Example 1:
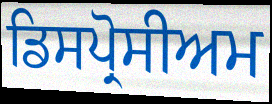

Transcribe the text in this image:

ਡਿਸਪ੍ਰੋਸੀਅਮ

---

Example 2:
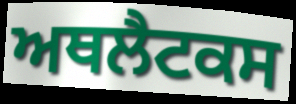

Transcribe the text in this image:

ਅਥਲੈਟਕਸ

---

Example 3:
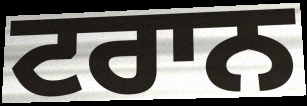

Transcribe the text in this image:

ਟਰਾਨ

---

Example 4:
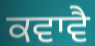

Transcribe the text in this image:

ਕਵਾਵੈ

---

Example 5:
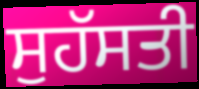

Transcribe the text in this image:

ਸੁਹੱਸਤੀ